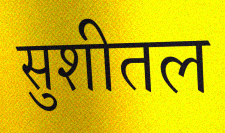
सुशीतल